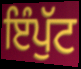
ਇੰਪੁੱਟ